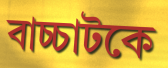
বাচ্চাটকে